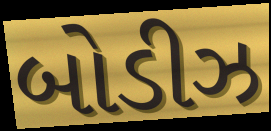
બોડીઝ